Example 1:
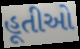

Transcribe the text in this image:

હૂતીઓ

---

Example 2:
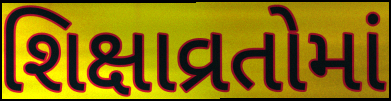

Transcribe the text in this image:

શિક્ષાવ્રતોમાં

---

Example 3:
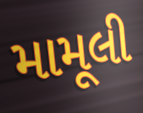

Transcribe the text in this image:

મામૂલી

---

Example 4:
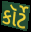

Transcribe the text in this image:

કૉર્ટે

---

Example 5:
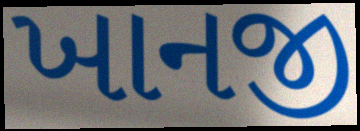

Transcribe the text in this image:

ખાનજી